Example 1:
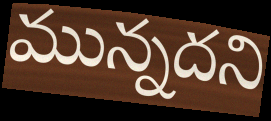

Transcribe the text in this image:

మున్నదని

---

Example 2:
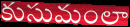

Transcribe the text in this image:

కుసుమంలా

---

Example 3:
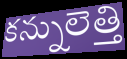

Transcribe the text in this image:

కన్నులెత్తి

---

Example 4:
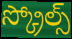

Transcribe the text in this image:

స్క్రోల్స్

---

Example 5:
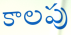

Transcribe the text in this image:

కాలపు